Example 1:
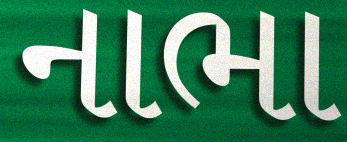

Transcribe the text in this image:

નાભા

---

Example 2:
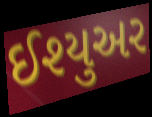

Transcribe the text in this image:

ઈશ્યુઅર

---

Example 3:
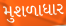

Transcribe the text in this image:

મુશળાધાર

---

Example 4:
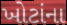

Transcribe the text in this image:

ખોટાંના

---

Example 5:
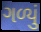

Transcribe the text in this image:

ગળ્યું